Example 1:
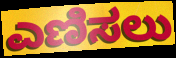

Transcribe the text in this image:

ಎಣಿಸಲು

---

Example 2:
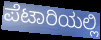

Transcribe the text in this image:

ಪೆಟಾರಿಯಲ್ಲಿ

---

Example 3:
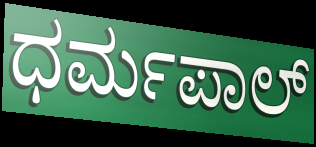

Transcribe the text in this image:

ಧರ್ಮಪಾಲ್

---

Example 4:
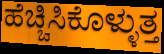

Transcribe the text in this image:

ಹೆಚ್ಚಿಸಿಕೊಳ್ಳುತ್ತ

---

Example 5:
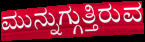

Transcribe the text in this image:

ಮುನ್ನುಗ್ಗುತ್ತಿರುವ